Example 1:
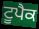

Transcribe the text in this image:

ਟੂਪੈਕ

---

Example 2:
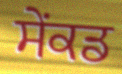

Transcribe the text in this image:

ਸੇਂਕਡ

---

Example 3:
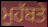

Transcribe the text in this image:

ਮੁਹੱਬਤੇ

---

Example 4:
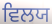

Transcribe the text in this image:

ਵਿਲਯ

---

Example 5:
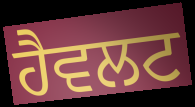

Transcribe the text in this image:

ਹੈਵਲਟ